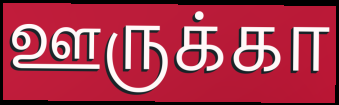
ஊருக்கா